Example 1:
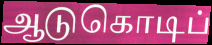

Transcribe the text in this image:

ஆடுகொடிப்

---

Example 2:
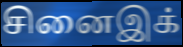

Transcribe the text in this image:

சினைஇக்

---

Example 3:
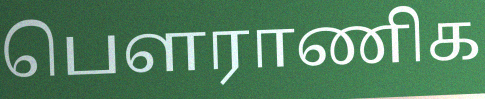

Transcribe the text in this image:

பௌராணிக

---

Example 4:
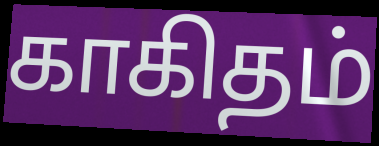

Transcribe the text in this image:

காகிதம்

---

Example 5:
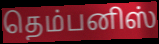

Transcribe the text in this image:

தெம்பனிஸ்